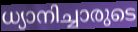
ധ്യാനിച്ചാരുടെ